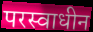
परस्वाधीन